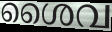
ശൈവ